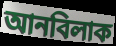
আনবিলাক